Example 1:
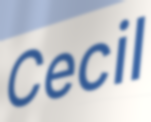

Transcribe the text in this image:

Cecil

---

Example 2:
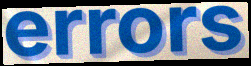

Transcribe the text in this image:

errors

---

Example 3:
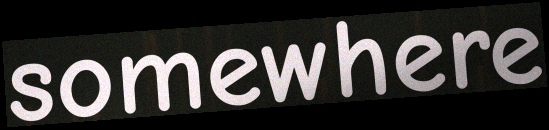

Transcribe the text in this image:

somewhere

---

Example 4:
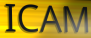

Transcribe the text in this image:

ICAM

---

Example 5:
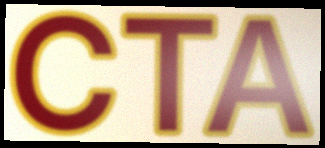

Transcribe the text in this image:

CTA